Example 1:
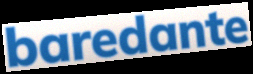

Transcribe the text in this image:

baredante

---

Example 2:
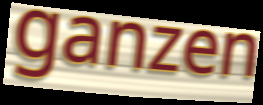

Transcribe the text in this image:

ganzen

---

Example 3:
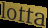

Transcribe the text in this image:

lotta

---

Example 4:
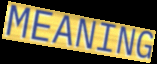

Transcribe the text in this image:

MEANING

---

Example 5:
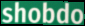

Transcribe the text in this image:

shobdo